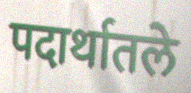
पदार्थातले